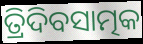
ତ୍ରିଦିବସାତ୍ମକ